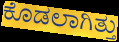
ಕೊಡಲಾಗಿತ್ತು